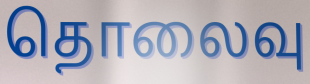
தொலைவு